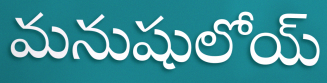
మనుషులోయ్